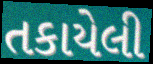
તકાયેલી